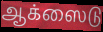
ஆக்ஸைடு